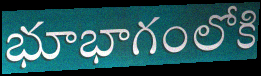
భూభాగంలోకి